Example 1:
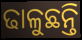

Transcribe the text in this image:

ଢାଳୁଛନ୍ତି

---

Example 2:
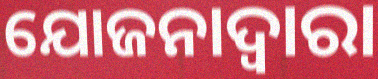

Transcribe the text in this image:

ଯୋଜନାଦ୍ବାରା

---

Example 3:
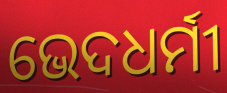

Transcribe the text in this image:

ଭେଦଧର୍ମୀ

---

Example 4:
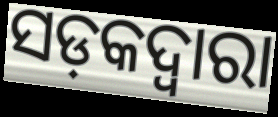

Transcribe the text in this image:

ସଡ଼କଦ୍ୱାରା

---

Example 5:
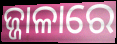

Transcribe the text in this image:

ଜ୍ଜାଳାରେ